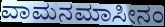
ವಾಮನಮಾಸೀನಂ